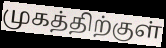
முகத்திற்குள்